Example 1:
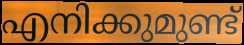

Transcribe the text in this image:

എനിക്കുമുണ്ട്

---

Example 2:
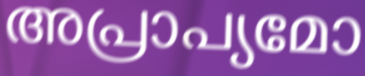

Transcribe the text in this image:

അപ്രാപ്യമോ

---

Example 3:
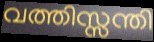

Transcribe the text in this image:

വത്തിസ്സന്തി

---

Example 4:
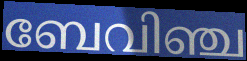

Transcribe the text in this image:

ബേവിഞ്ച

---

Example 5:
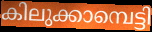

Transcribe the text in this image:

കിലുക്കാമ്പെട്ടി